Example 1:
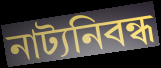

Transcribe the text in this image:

নাট্যনিবন্ধ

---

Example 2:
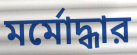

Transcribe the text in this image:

মর্মোদ্ধার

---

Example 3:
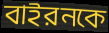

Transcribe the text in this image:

বাইরনকে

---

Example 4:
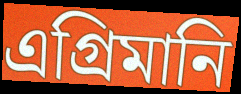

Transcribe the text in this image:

এগ্রিমানি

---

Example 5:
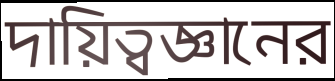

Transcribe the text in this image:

দায়িত্বজ্ঞানের